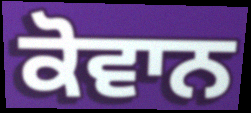
ਕੋਵਾਨ